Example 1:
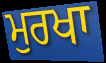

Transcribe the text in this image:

ਮੁਰਖਾ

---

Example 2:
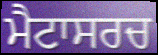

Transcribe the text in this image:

ਮੈਟਾਸਰਚ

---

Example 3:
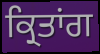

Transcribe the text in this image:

ਕ੍ਰਿਤਾਂਗ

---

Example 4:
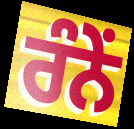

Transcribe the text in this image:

ਰੰਨੇਂ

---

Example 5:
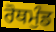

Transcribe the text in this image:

ਰੋਥਮੁੰਡ